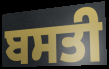
ਬਸਤੀ